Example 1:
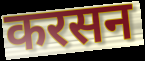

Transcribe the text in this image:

करसन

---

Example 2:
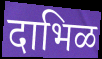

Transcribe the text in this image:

दाभिळ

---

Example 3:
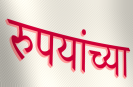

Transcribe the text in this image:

रुपयांच्या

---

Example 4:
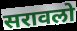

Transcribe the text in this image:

सरावलो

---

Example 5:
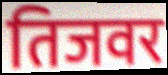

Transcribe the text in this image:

तिजवर